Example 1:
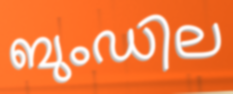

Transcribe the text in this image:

ബുംഡില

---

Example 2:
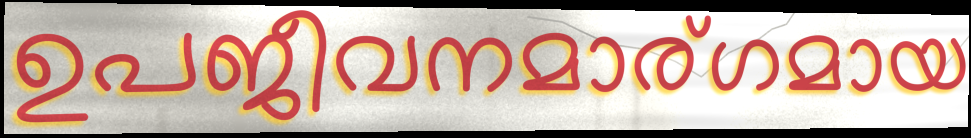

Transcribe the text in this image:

ഉപജീവനമാര്ഗമായ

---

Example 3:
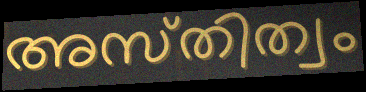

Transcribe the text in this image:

അസ്‌തിത്വം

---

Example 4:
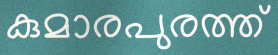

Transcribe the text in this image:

കുമാരപുരത്ത്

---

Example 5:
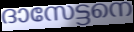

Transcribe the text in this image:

ദാസേട്ടനെ